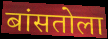
बांसतोला